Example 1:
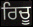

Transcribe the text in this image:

ਰਿਚੂ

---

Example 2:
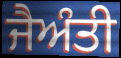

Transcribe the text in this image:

ਜੈਅੰਤੀ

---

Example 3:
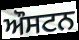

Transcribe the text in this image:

ਔਸਟਨ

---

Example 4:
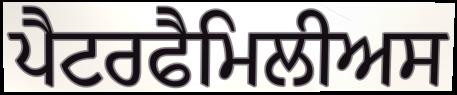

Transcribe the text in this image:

ਪੈਟਰਫੈਮਿਲੀਅਸ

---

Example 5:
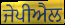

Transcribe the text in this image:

ਜੇਪੀਐਲ